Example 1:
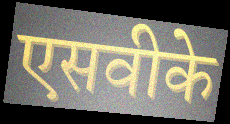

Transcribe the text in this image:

एसवीके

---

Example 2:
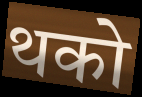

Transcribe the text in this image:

थको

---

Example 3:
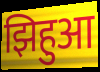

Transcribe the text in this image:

झिहुआ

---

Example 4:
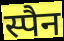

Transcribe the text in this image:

स्पैन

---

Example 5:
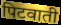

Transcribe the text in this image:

पिटवाती